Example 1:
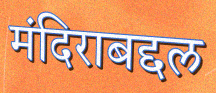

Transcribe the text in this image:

मंदिराबद्दल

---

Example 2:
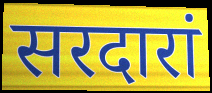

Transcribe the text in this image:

सरदारां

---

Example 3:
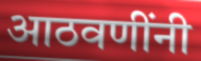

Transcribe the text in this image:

आठवणींनी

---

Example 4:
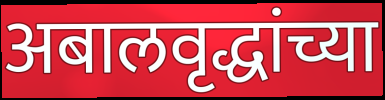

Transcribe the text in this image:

अबालवृद्धांच्या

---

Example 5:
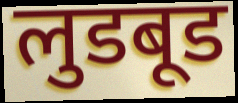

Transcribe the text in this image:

लुडबूड